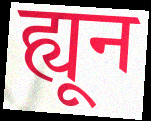
ह्यून